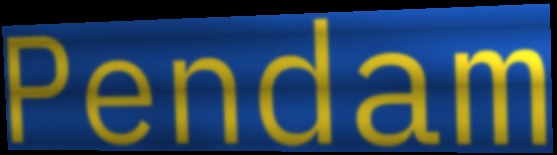
Pendam